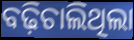
ବଢ଼ିଚାଲିଥିଲା